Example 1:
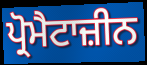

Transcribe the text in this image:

ਪ੍ਰੋਮੈਟਾਜ਼ੀਨ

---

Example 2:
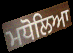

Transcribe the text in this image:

ਮਧੋਲਿਆ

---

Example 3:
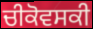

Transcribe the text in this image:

ਚੀਕੋਵਸਕੀ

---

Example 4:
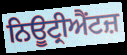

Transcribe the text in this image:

ਨਿਊਟ੍ਰੀਐਂਟਜ਼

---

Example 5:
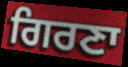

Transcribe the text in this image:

ਗਿਰਣਾ